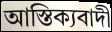
আস্তিক্যবাদী